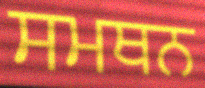
ਸਮਥਨ